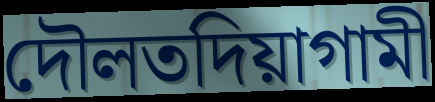
দৌলতদিয়াগামী